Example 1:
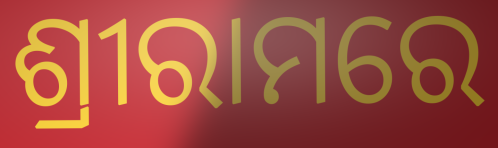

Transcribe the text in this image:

ଶ୍ରୀରାମରେ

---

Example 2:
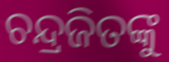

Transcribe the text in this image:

ଚନ୍ଦ୍ରଜିତଙ୍କୁ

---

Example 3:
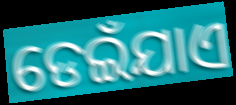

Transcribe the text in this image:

ଡେଇଁଯାଏ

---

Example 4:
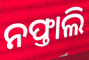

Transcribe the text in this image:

ନଫ୍ତାଲି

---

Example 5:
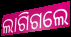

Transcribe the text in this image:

ଲାଗିଗଲେ